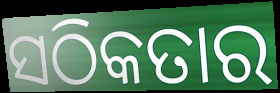
ସଠିକତାର